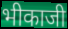
भीकाजी